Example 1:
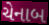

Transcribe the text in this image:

ચેનાબ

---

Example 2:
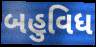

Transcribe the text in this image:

બહુવિધ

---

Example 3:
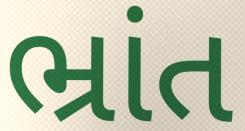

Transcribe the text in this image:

ભ્રાંત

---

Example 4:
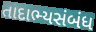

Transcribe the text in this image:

તાદાભ્યસંબંધ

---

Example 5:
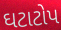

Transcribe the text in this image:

ઘટાટોપ